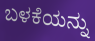
ಬಳಕೆಯನ್ನು